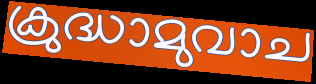
ക്രുദ്ധാമുവാച